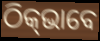
ଠିକ୍‍ଭାବେ